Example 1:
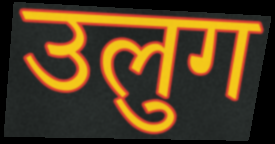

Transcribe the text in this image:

उलुग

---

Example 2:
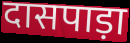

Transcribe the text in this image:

दासपाड़ा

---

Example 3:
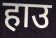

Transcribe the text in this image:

हाउ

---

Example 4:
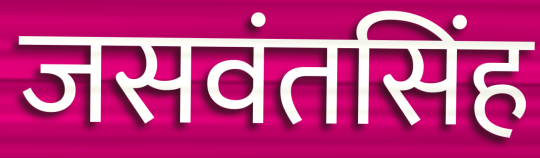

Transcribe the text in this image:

जसवंतसिंह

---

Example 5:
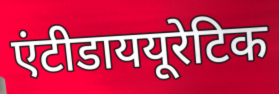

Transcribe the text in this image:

एंटीडाययूरेटिक